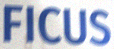
FICUS